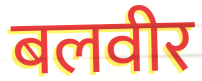
बलवीर